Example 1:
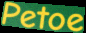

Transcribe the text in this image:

Petoe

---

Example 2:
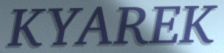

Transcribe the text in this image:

KYAREK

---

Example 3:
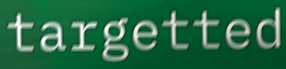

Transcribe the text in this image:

targetted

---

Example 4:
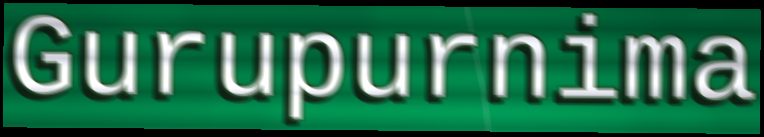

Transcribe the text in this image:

Gurupurnima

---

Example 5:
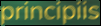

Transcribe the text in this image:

principiis